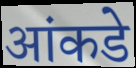
आंकडे